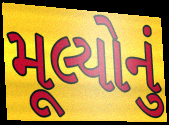
મૂલ્યોનું